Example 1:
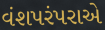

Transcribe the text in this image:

વંશપરંપરાએ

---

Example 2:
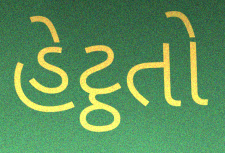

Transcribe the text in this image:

હેટ્ઠતો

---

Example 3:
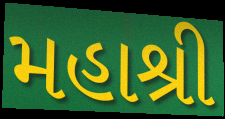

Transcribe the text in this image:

મહાશ્રી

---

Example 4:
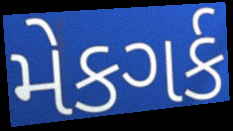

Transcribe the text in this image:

મેકગર્ક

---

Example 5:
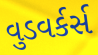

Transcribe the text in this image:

વુડવર્કર્સ